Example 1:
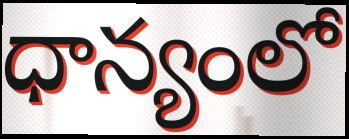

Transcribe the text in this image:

ధాన్యంలో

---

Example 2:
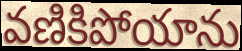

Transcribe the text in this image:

వణికిపోయాను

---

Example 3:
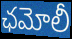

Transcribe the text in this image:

ఛమోలీ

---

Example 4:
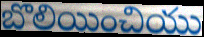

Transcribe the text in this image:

బొలియించియు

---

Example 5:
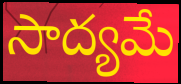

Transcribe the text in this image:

సాద్యమే